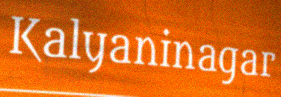
Kalyaninagar